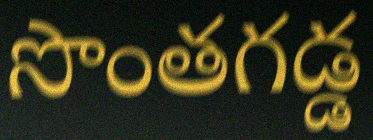
సొంతగడ్డ